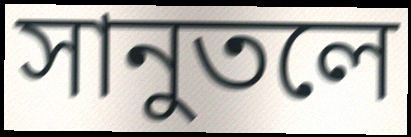
সানুতলে